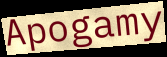
Apogamy